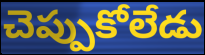
చెప్పుకోలేడు